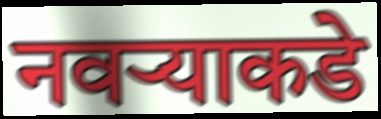
नवऱ्याकडे